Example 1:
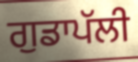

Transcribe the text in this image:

ਗੁਡਾਪੱਲੀ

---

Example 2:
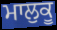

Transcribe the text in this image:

ਮਾਲੁਕੂ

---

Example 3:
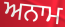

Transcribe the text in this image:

ਅਨਾਮ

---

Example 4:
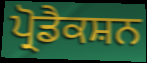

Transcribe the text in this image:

ਪ੍ਰੋਡੈਕਸ਼ਨ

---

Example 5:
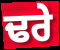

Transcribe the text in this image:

ਢਰੇ